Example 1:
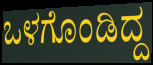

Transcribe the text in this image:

ಒಳಗೊಂಡಿದ್ದ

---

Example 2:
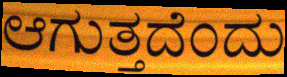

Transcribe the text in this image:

ಆಗುತ್ತದೆಂದು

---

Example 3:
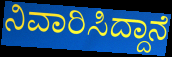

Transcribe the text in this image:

ನಿವಾರಿಸಿದ್ದಾನೆ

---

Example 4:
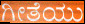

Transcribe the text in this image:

ಗೀತೆಯು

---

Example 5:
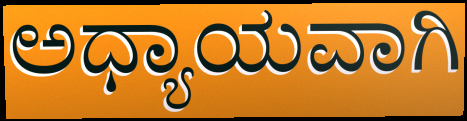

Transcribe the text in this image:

ಅಧ್ಯಾಯವಾಗಿ